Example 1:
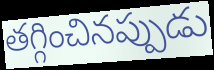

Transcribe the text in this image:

తగ్గించినప్పుడు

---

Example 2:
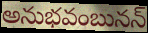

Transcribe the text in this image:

అనుభవంబునన్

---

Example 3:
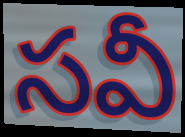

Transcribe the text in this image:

సవీ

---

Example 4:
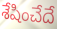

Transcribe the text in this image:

శేషించేదే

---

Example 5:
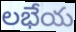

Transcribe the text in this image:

లభేయ